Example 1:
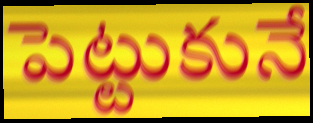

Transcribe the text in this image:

పెట్టుకునే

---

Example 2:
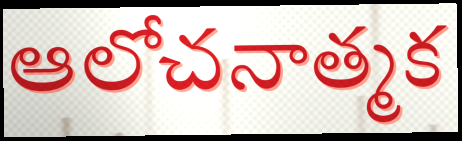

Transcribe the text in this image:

ఆలోచనాత్మక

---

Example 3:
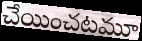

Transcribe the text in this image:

చేయించటమూ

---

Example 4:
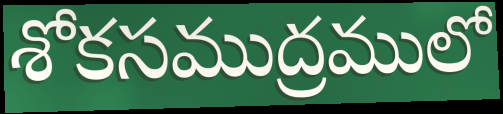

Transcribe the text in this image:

శోకసముద్రములో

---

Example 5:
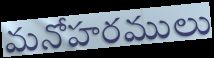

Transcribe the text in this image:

మనోహరములు